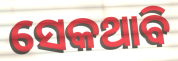
ସେକଥାବି